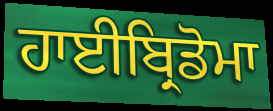
ਹਾਈਬ੍ਰਿਡੋਮਾ